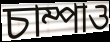
চাম্পাও